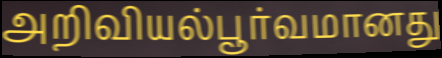
அறிவியல்பூர்வமானது